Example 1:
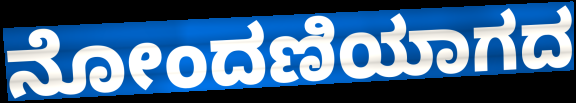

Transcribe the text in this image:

ನೋಂದಣಿಯಾಗದ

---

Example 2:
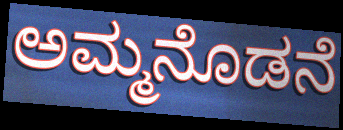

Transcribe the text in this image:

ಅಮ್ಮನೊಡನೆ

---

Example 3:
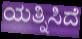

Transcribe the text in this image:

ಯತ್ನಿಸಿದೆ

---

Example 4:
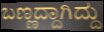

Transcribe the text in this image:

ಬಣ್ಣದ್ದಾಗಿದ್ದು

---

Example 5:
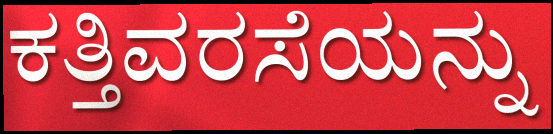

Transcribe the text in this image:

ಕತ್ತಿವರಸೆಯನ್ನು